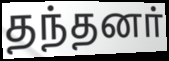
தந்தனர்